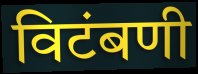
विटंबणी